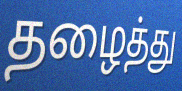
தழைத்து